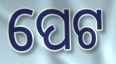
ପେଟ